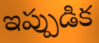
ఇప్పుడిక